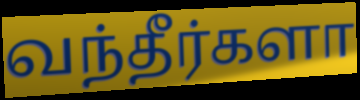
வந்தீர்களா